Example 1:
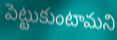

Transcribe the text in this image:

పెట్టుకుంటామని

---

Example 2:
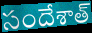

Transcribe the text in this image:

సందేశాత్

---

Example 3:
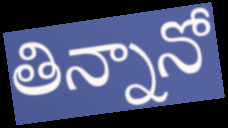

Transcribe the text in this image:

తిన్నానో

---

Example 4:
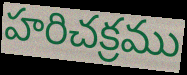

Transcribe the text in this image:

హరిచక్రము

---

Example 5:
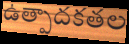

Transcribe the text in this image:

ఉత్పాదకతల